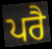
ਪਰੈ